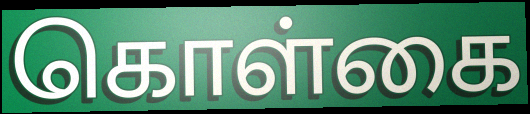
கொள்கை